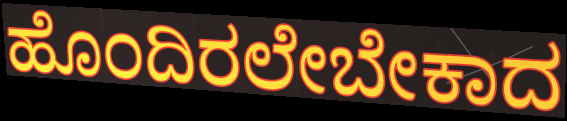
ಹೊಂದಿರಲೇಬೇಕಾದ